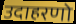
उदाहरणो